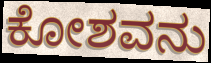
ಕೋಶವನು